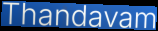
Thandavam